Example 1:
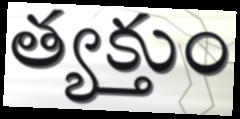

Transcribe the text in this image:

త్యక్తుం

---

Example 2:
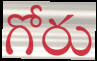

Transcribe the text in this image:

గోరు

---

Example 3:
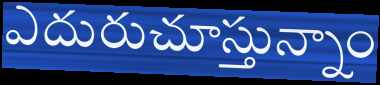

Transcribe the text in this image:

ఎదురుచూస్తున్నాం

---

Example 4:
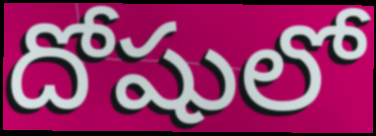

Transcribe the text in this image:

దోషులో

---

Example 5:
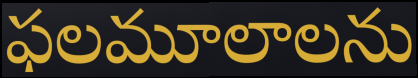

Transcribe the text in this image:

ఫలమూలాలను